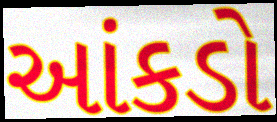
આંકડો